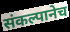
संकल्पानेच